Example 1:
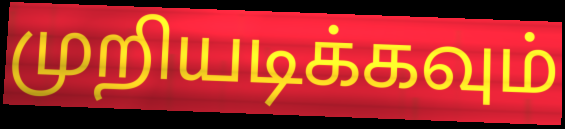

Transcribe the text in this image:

முறியடிக்கவும்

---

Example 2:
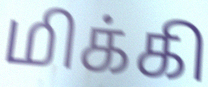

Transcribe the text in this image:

மிக்கி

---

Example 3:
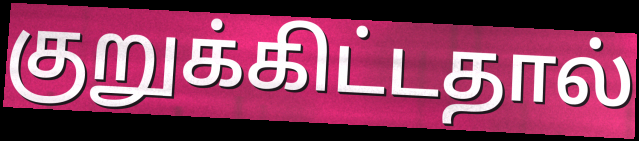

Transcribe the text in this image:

குறுக்கிட்டதால்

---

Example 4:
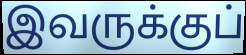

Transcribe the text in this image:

இவருக்குப்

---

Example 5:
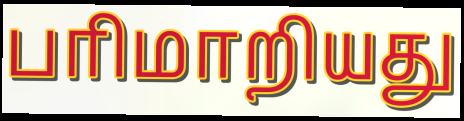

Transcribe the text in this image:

பரிமாறியது